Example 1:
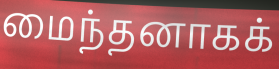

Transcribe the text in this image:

மைந்தனாகக்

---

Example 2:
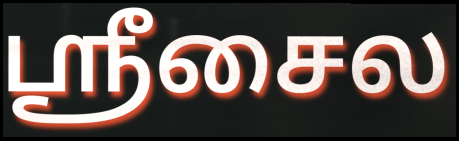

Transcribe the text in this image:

ஸ்ரீசைல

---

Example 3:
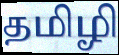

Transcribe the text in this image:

தமிழி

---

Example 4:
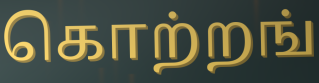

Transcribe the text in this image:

கொற்றங்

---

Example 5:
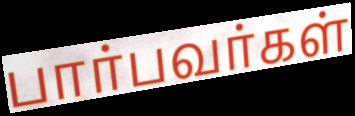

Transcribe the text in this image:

பார்பவர்கள்